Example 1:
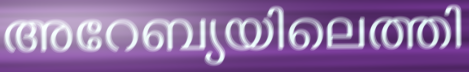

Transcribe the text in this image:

അറേബ്യയിലെത്തി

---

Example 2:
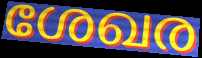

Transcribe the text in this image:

ശേഖര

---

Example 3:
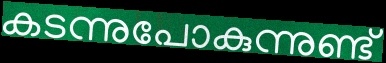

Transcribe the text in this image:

കടന്നുപോകുന്നുണ്ട്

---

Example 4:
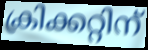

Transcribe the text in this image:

ക്രിക്കറ്റിന്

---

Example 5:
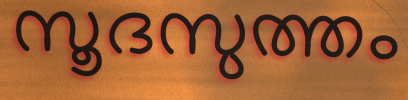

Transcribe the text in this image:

സൂദസുത്തം